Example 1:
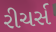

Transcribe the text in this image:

રીચર્સ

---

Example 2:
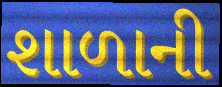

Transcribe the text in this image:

શાળાની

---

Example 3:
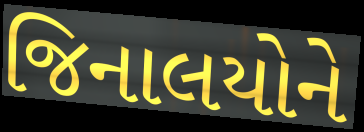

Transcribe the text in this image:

જિનાલયોને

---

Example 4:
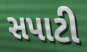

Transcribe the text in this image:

સપાટી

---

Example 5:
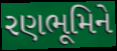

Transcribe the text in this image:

રણભૂમિને